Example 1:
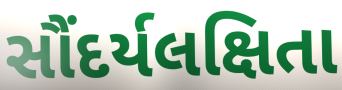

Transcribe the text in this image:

સૌંદર્યલક્ષિતા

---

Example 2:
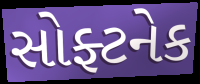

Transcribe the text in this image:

સોફ્ટનેક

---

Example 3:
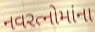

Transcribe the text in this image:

નવરત્નોમાંના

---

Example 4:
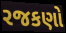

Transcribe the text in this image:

રજકણો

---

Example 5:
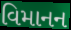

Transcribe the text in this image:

વિમાનન